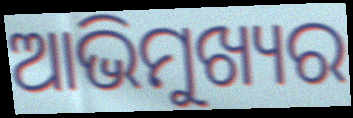
ଆଭିମୁଖ୍ୟର